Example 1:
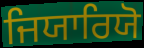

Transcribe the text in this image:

ਜਿਯਾਰਿਯੋ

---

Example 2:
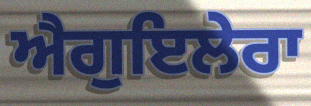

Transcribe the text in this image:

ਐਗੁਇਲੇਰਾ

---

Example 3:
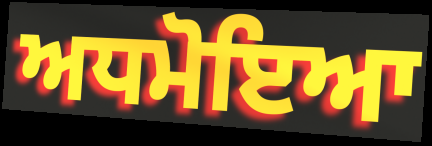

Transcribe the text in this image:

ਅਧਮੋਇਆ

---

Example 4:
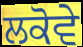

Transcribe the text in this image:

ਲਕੋਵੇ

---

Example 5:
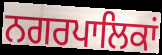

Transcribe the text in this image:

ਨਗਰਪਾਲਿਕਾਂ